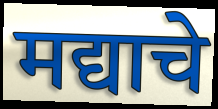
मद्याचे